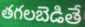
తగలబెడితే